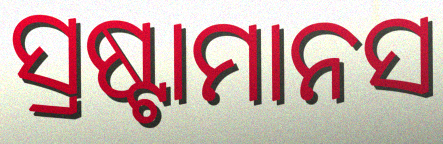
ସ୍ରଷ୍ଟାମାନସ